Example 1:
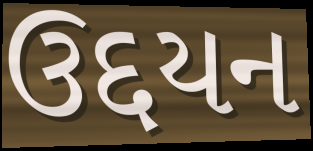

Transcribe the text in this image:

ઉદ્દયન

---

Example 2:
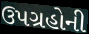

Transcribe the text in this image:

ઉપગ્રહોની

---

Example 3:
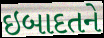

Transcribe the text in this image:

ઇબાદતને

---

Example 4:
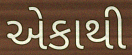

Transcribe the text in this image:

એકાથી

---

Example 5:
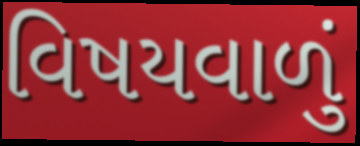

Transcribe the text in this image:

વિષયવાળું